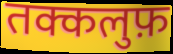
तक्कलुफ़